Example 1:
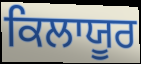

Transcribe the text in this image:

ਕਿਲਾਯੂਰ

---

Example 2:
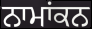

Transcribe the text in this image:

ਨਾਮਾਂਕਨ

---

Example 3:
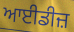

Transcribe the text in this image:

ਆਈਡੀਜ਼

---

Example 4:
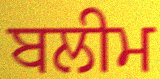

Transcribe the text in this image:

ਬਲੀਮ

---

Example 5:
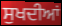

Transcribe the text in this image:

ਸੁਖਦੀਆਂ